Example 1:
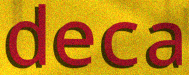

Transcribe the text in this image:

deca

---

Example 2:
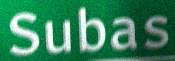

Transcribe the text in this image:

Subas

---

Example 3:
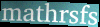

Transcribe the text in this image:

mathrsfs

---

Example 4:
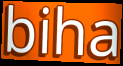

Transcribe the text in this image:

biha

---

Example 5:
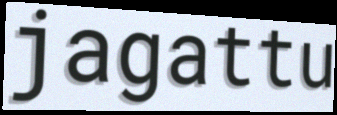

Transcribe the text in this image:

jagattu